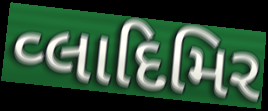
વ્લાદિમિર